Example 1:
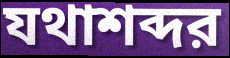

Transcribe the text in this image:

যথাশব্দর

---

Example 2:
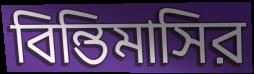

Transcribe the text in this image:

বিন্তিমাসির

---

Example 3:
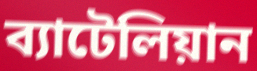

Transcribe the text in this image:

ব্যাটেলিয়ান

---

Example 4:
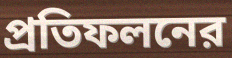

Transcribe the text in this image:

প্রতিফলনের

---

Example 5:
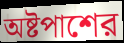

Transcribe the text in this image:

অষ্টপাশের